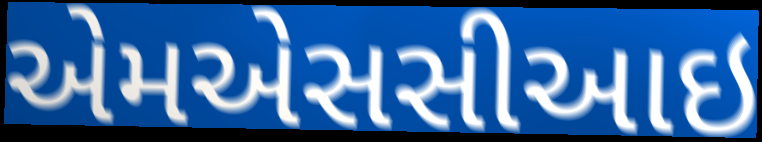
એમએસસીઆઇ